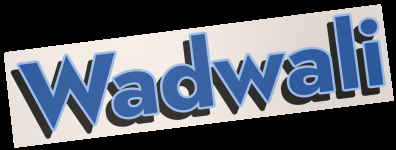
Wadwali